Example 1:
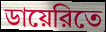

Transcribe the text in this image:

ডায়েরিতে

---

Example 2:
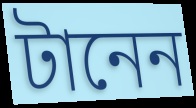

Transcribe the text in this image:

টানেন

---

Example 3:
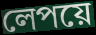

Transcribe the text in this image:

লেপয়ে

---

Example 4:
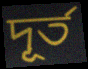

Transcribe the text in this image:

দূর্ত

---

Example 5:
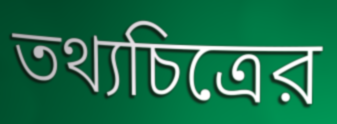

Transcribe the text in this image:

তথ্যচিত্রের